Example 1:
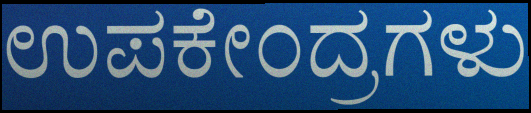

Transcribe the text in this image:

ಉಪಕೇಂದ್ರಗಳು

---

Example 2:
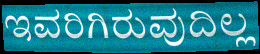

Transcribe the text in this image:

ಇವರಿಗಿರುವುದಿಲ್ಲ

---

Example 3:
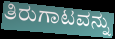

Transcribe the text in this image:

ತಿರುಗಾಟವನ್ನು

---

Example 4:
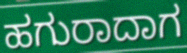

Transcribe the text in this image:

ಹಗುರಾದಾಗ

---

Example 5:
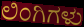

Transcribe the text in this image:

ಲಿಂಗಿಗಳು